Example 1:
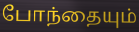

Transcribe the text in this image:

போந்தையும்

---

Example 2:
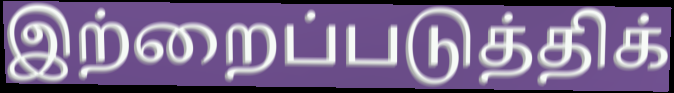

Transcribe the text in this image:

இற்றைப்படுத்திக்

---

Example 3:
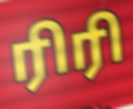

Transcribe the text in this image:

ரிரி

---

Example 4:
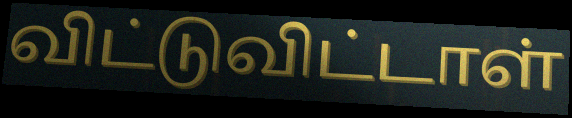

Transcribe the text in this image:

விட்டுவிட்டாள்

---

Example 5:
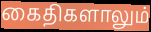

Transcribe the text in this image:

கைதிகளாலும்